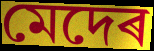
মেদেৰ